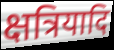
क्षत्रियादि